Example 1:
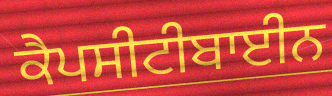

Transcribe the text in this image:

ਕੈਪਸੀਟੀਬਾਈਨ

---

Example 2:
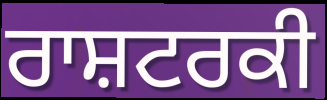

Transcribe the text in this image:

ਰਾਸ਼ਟਰਕੀ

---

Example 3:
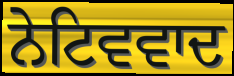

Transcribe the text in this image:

ਨੇਟਿਵਵਾਦ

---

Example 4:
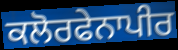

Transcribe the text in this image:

ਕਲੋਰਫੇਨਾਪੀਰ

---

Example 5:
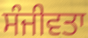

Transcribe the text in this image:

ਸੰਜੀਵਤਾ